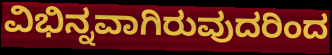
ವಿಭಿನ್ನವಾಗಿರುವುದರಿಂದ